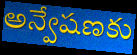
అన్వేషణకు